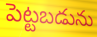
పెట్టబడును